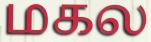
மகல